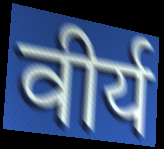
वीर्य